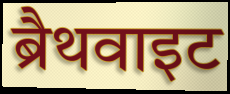
ब्रैथवाइट